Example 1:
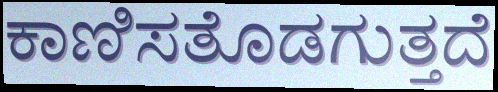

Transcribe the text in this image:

ಕಾಣಿಸತೊಡಗುತ್ತದೆ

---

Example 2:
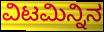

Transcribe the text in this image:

ವಿಟಮಿನ್ನಿನ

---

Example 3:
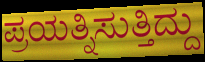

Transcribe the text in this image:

ಪ್ರಯತ್ನಿಸುತ್ತಿದ್ದು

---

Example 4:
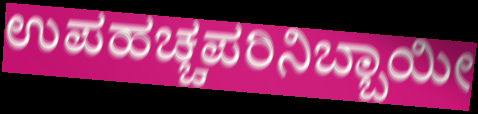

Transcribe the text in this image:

ಉಪಹಚ್ಚಪರಿನಿಬ್ಬಾಯೀ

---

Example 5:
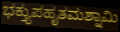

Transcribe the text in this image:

ಭಕ್ತ್ಯುಪಹೃತಮಶ್ನಾಮಿ